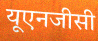
यूएनजीसी